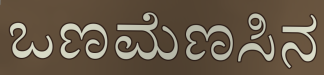
ಒಣಮೆಣಸಿನ